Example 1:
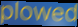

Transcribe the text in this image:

plowed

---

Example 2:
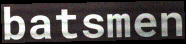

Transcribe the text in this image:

batsmen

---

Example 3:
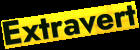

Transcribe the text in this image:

Extravert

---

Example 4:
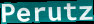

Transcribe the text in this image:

Perutz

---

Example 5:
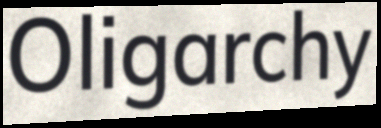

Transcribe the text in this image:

Oligarchy